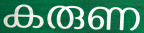
കരുണ